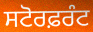
ਸਟੋਰਫ਼ਰੰਟ